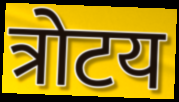
त्रोटय